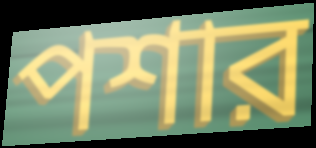
পশার